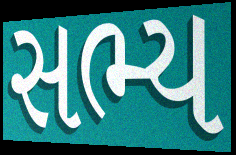
સભ્ય